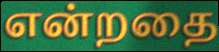
என்றதை